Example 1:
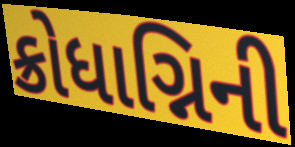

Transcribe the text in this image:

ક્રોધાગ્નિની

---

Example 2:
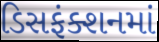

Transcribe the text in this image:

ડિસફંક્શનમાં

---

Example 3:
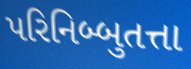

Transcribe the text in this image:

પરિનિબ્બુતત્તા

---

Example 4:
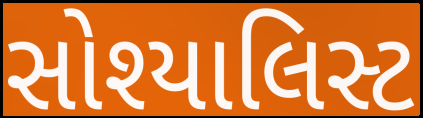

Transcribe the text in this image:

સોશ્યાલિસ્ટ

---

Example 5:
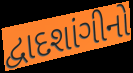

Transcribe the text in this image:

દ્વાદશાંગીનો